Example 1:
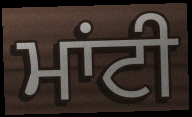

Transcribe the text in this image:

ਮਾਂਟੀ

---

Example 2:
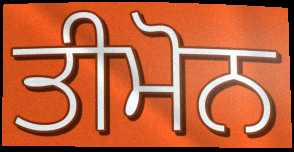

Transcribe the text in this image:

ਤੀਮੋਨ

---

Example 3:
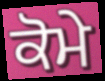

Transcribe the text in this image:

ਕੋਮੇ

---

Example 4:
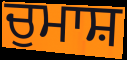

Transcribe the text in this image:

ਚੁਮਾਸ਼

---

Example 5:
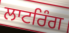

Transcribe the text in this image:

ਲਾਟਰਿੰਗ